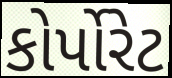
કોર્પોરેટ